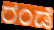
ರಂಡೆ